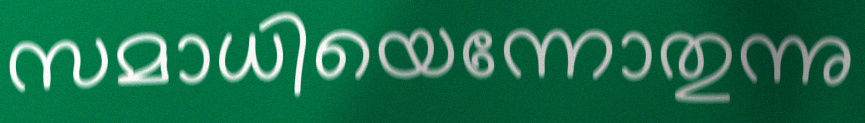
സമാധിയെന്നോതുന്നു